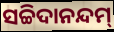
ସଚ୍ଚିଦାନନ୍ଦମ୍